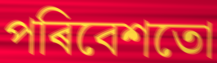
পৰিবেশতো